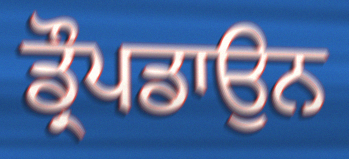
ਡ੍ਰੌਪਡਾਉਨ